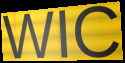
WIC